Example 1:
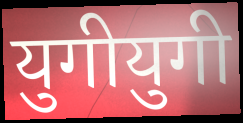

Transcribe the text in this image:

युगीयुगी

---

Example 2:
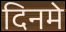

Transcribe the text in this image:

दिनमे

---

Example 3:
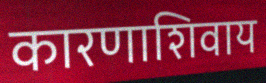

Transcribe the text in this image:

कारणाशिवाय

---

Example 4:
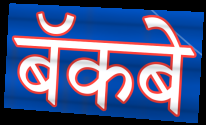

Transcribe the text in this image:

बॅकबे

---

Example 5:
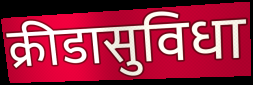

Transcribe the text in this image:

क्रीडासुविधा